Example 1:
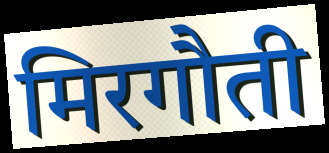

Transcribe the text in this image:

मिरगौती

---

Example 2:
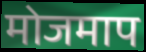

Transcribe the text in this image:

मोजमाप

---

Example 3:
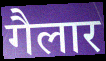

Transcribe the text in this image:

गैलार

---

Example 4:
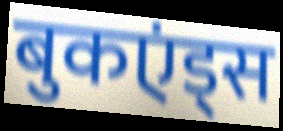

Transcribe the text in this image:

बुकएंड्स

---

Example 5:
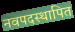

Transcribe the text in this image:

नवपदस्थापित